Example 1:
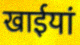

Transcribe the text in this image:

खाईयां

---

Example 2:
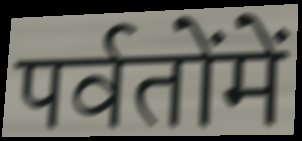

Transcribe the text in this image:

पर्वतोंमें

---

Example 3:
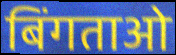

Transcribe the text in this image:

बिंगताओ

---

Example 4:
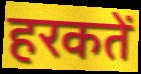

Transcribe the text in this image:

हरकतें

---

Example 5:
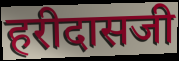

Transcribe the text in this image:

हरीदासजी